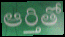
ఆర్తితో